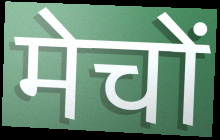
मेचों